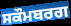
ਸਕੌਮਬਰਗ